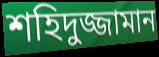
শহিদুজ্জামান